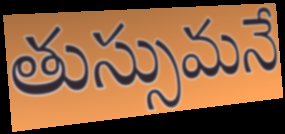
తుస్సుమనే